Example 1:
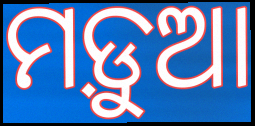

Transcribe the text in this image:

ମଡ଼ୁଆ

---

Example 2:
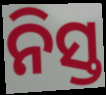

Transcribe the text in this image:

ନିସ୍ତ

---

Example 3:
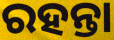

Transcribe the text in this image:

ରହନ୍ତା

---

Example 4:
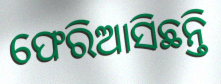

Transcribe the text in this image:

ଫେରିଆସିଛନ୍ତି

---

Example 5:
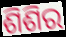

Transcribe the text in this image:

ଶିଶିର